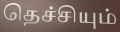
தெச்சியும்